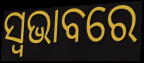
ସ୍ବଭାବରେ